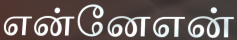
என்னேஎன்